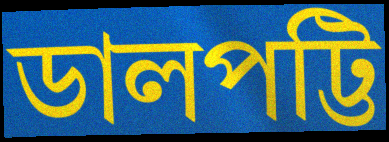
ডালপট্টি